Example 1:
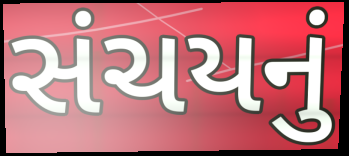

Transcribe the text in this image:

સંચયનું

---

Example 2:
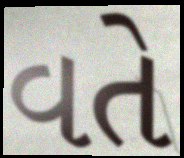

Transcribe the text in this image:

વતે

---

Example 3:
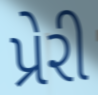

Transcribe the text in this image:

પ્રેરી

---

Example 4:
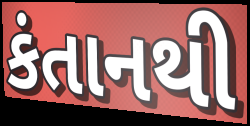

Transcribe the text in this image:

કંતાનથી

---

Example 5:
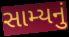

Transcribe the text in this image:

સામ્યનું